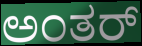
ಅಂತರ್